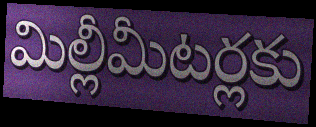
మిల్లీమీటర్లకు